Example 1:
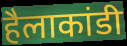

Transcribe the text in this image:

हैलाकांडी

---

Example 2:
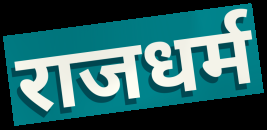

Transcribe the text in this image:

राजधर्म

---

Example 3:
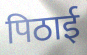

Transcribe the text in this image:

पिठाई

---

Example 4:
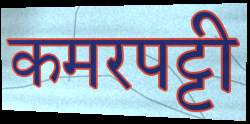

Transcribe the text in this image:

कमरपट्टी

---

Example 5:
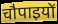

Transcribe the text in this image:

चौपाइयों